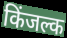
किंजल्क